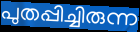
പുതപ്പിച്ചിരുന്ന